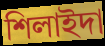
শিলাইদা